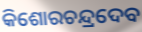
କିଶୋରଚନ୍ଦ୍ରଦେବ